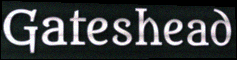
Gateshead